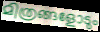
മിത്രങ്ങളോടും